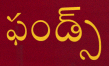
ఫండ్స్